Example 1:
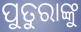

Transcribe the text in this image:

ପୁତୁରାଙ୍କୁ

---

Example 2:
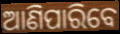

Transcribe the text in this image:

ଆଣିପାରିବେ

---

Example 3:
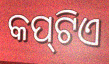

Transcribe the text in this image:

କପ୍‌ଟିଏ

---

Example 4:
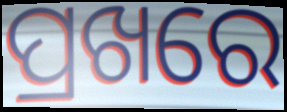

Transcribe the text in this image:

ପ୍ରଖରେ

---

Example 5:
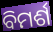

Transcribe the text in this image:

ବିମର୍ଶ